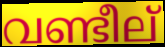
വണ്ടീല്